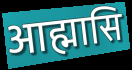
आह्मासि